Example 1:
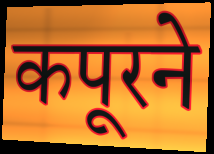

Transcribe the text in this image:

कपूरने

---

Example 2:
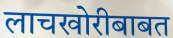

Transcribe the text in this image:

लाचखोरीबाबत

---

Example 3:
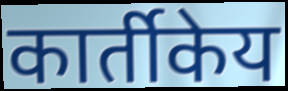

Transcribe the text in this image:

कार्तीकेय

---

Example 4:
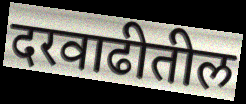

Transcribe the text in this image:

दरवाढीतील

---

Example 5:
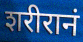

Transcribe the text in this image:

शरीरानं